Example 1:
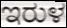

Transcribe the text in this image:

ಇರುಳ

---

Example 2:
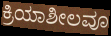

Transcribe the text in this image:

ಕ್ರಿಯಾಶೀಲವೂ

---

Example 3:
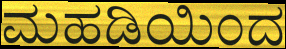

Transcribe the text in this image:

ಮಹಡಿಯಿಂದ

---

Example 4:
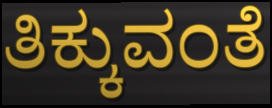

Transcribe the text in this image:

ತಿಕ್ಕುವಂತೆ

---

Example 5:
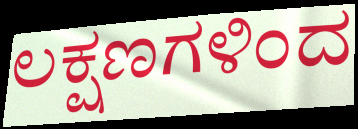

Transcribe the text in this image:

ಲಕ್ಷಣಗಳಿಂದ